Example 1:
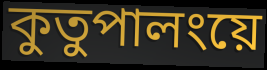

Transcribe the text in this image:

কুতুপালংয়ে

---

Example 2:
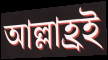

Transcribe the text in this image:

আল্লাহ্রই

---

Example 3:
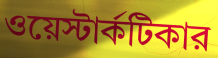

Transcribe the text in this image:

ওয়েস্টার্কটিকার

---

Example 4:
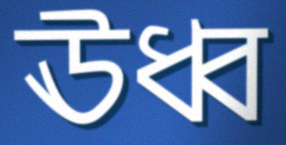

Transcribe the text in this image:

ঊধ্ব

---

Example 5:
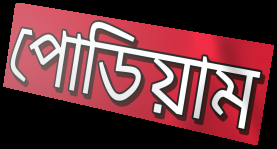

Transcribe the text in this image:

পোডিয়াম